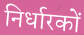
निर्धारकों